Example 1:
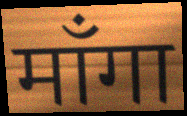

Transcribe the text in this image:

माँगा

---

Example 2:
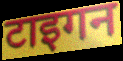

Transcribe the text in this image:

टाइगन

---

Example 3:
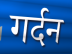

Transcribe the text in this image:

गर्दन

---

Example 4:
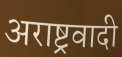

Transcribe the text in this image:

अराष्ट्रवादी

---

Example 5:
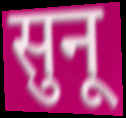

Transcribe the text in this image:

सुनू